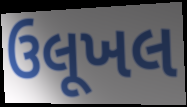
ઉલૂખલ